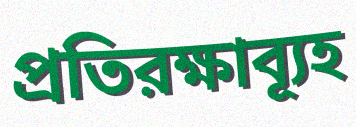
প্রতিরক্ষাব্যূহ